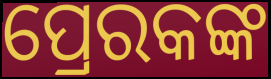
ପ୍ରେରକଙ୍କ